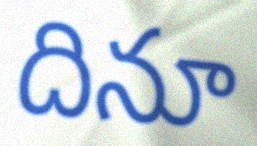
దినూ